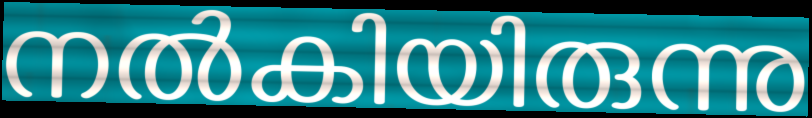
നൽകിയിരുന്നു